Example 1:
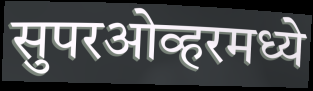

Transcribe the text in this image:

सुपरओव्हरमध्ये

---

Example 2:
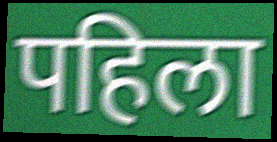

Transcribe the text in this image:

पहिला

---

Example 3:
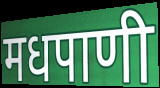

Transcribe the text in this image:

मधपाणी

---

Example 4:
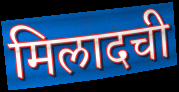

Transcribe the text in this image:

मिलादची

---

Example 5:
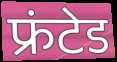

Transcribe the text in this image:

फ्रंटेड